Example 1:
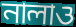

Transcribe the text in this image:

নালাও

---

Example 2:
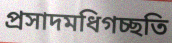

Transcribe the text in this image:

প্রসাদমধিগচ্ছতি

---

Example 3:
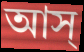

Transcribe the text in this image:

আস্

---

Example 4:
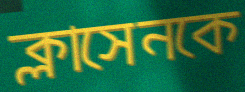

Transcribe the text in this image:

ক্লাসেনকে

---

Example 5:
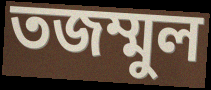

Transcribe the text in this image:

তজম্মুল